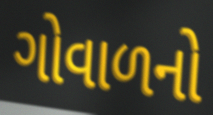
ગોવાળનો